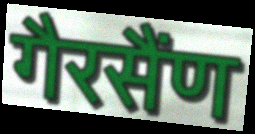
गैरसैंण